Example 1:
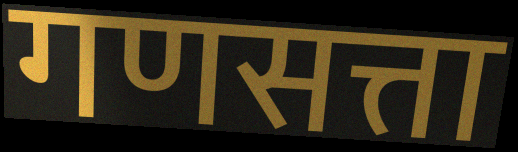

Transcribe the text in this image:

गणसत्ता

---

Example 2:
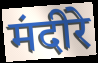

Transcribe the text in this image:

मंदीरे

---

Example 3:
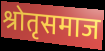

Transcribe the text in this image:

श्रोतृसमाज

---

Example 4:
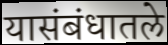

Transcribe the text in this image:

यासंबंधातले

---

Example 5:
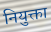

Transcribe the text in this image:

नियुक्ता